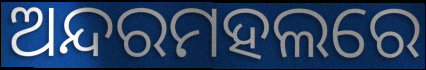
ଅନ୍ଦରମହଲରେ